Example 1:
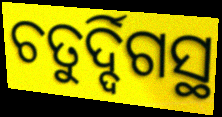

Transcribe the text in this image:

ଚତୁର୍ଦ୍ଦିଗସ୍ଥ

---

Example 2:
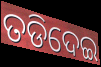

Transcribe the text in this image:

ତଡିଦେଇ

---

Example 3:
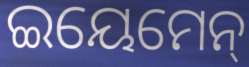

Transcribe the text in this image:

ଇୟେମେନ୍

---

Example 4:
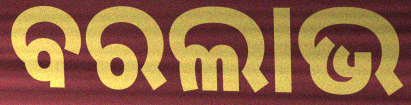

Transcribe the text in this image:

ବରଲାଭ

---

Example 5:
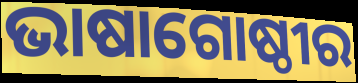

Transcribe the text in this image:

ଭାଷାଗୋଷ୍ଠୀର